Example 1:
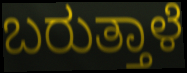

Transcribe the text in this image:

ಬರುತ್ತಾಳೆ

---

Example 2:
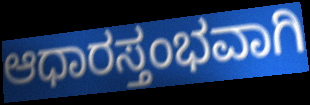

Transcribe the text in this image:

ಆಧಾರಸ್ತಂಭವಾಗಿ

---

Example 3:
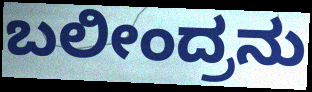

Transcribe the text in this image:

ಬಲೀಂದ್ರನು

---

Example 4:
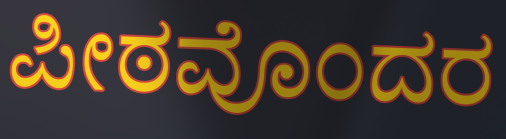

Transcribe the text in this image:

ಪೀಠವೊಂದರ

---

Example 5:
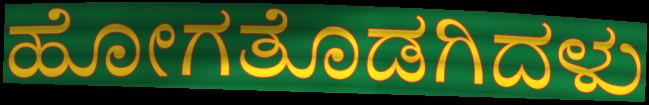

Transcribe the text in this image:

ಹೋಗತೊಡಗಿದಳು